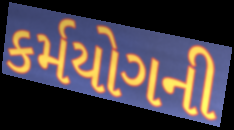
કર્મયોગની